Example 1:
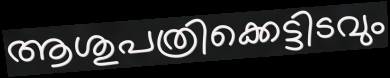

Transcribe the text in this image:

ആശുപത്രിക്കെട്ടിടവും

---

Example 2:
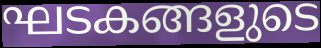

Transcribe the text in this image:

ഘടകങ്ങളുടെ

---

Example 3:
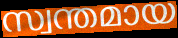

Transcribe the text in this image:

സ്വന്തമായ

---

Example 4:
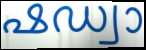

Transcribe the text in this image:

ഷഡ്വാ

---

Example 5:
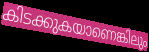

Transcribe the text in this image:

കിടക്കുകയാണെങ്കിലും